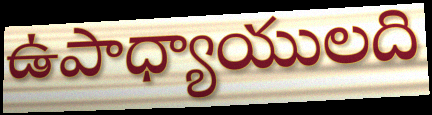
ఉపాధ్యాయులది